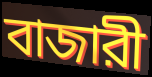
বাজারী